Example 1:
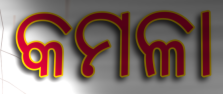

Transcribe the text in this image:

କମଳା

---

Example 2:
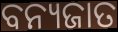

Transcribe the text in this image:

ବନ୍ୟଜାତ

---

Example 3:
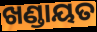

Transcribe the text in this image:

ଖଣ୍ଡାୟତ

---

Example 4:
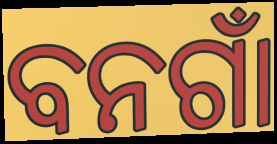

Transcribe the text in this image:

ବନଗାଁ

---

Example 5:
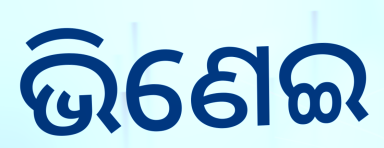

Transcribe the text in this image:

ଭିଣେଇ